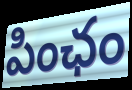
పింఛం